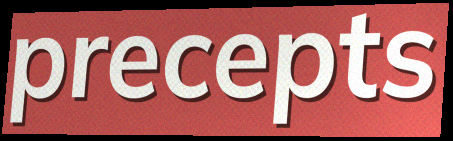
precepts